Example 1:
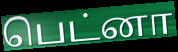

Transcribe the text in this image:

பெட்னா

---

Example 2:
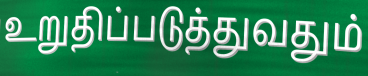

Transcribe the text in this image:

உறுதிப்படுத்துவதும்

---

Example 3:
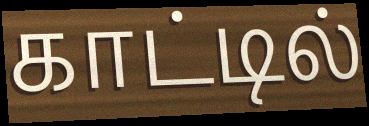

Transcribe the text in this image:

காட்டில்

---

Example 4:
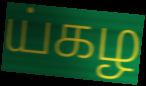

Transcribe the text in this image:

ய்கழ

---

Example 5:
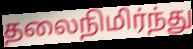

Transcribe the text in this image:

தலைநிமிர்ந்து